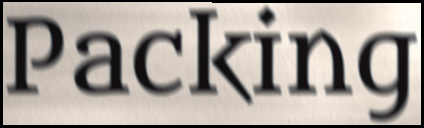
Packing